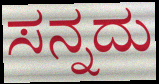
ಸನ್ನದು